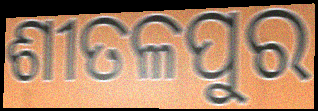
ଶୀତଳପୁର